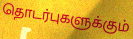
தொடர்புகளுக்கும்